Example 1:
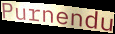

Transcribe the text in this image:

Purnendu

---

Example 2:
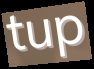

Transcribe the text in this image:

tup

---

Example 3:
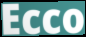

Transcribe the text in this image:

Ecco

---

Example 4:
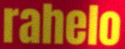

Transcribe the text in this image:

rahelo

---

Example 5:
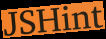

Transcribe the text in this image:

JSHint